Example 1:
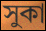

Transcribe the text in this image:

সুকা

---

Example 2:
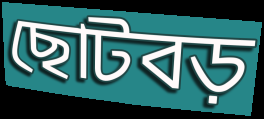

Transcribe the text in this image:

ছোটবড়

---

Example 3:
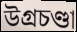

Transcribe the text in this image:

উগ্রচণ্ডা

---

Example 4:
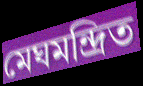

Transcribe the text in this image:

মেঘমন্দ্রিত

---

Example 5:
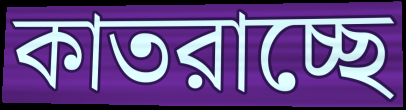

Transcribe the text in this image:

কাতরাচ্ছে